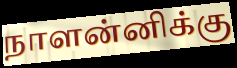
நாளன்னிக்கு